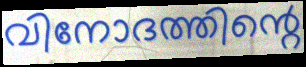
വിനോദത്തിന്റെ